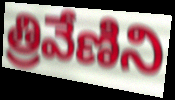
త్రివేణిని